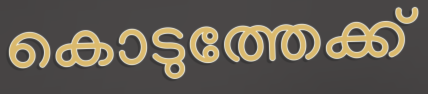
കൊടുത്തേക്ക്